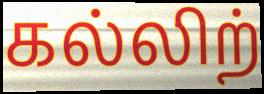
கல்லிற்